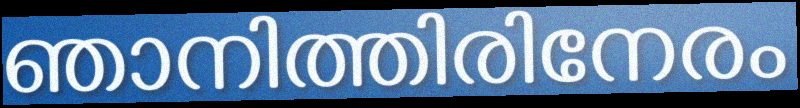
ഞാനിത്തിരിനേരം